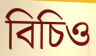
বিচিও